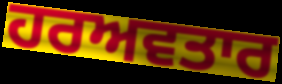
ਹਰਅਵਤਾਰ